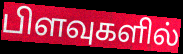
பிளவுகளில்